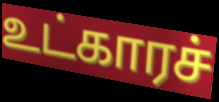
உட்காரச்